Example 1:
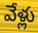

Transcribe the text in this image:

వేళ్లు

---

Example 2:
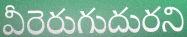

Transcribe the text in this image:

వీరెరుగుదురని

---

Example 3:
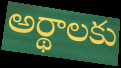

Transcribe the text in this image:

అర్థాలకు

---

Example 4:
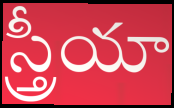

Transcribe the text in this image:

స్త్రీయా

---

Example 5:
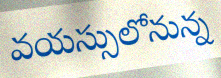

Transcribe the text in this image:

వయస్సులోనున్న